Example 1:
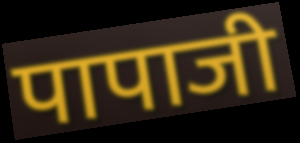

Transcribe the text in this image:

पापाजी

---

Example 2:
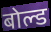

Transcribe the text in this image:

बोल्ड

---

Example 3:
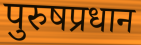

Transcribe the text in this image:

पुरुषप्रधान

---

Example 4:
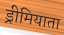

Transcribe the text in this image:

ड्रीमियाता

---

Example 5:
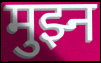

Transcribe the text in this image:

मुझ्न